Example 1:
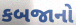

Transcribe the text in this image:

કબજાનો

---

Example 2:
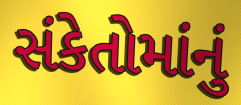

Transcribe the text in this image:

સંકેતોમાંનું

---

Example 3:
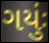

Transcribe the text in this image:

ગયુંઃ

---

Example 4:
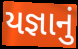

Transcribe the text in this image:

યજ્ઞાનું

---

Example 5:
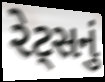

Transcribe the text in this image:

રેટ્સનું